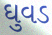
ઘુવડ